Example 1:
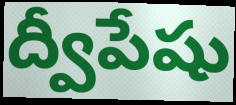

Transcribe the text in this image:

ద్వీపేషు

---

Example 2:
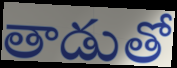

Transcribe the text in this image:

తాడుతో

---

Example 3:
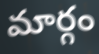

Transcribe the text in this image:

మార్గం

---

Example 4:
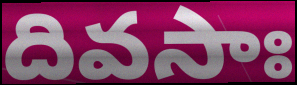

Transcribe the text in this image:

దివసాః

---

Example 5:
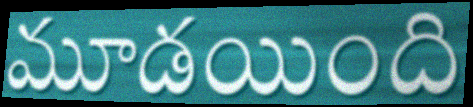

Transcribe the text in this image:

మూడయింది